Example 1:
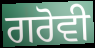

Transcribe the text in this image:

ਗਰੋਵੀ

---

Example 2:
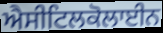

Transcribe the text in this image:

ਐਸੀਟਿਲਕੋਲਾਈਨ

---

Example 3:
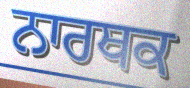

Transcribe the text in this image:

ਨਾਰਥਕ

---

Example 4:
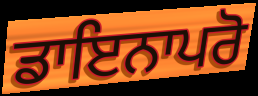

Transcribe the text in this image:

ਡਾਇਨਾਪਰੋ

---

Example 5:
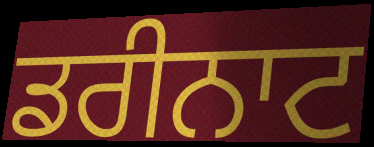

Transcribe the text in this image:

ਡਰੀਨਾਟ